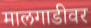
मालगाडीवर